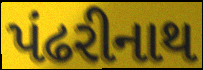
પંઢરીનાથ